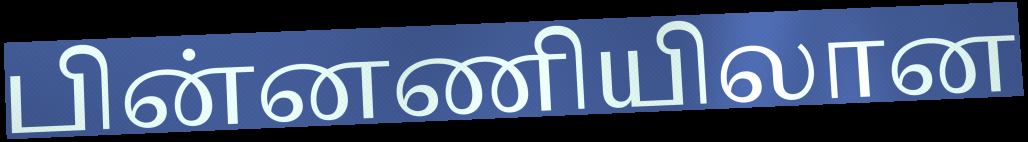
பின்னணியிலான